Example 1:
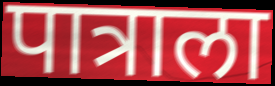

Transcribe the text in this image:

पात्राला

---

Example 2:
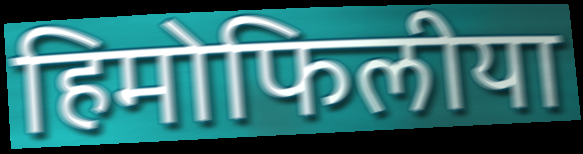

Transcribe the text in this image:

हिमोफिलीया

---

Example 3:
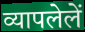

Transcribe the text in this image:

व्यापलेलें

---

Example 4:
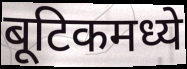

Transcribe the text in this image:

बूटिकमध्ये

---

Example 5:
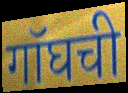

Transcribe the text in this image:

गॉघची